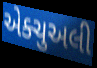
એક્ચુઅલી